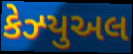
કેઝ્યુઅલ